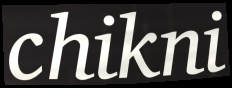
chikni